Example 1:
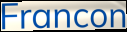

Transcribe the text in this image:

Francon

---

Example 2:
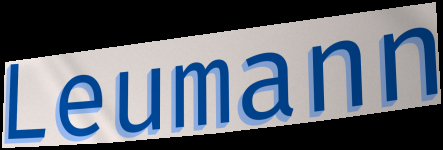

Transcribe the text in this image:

Leumann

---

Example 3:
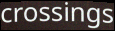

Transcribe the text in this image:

crossings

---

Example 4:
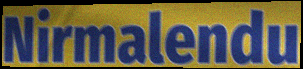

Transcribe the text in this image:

Nirmalendu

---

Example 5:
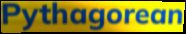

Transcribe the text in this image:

Pythagorean